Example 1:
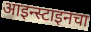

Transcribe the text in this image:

आइन्स्टाइनचा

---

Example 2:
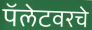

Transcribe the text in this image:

पॅलेटवरचे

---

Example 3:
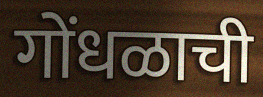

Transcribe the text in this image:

गोंधळाची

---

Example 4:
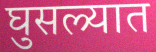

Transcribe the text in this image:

घुसल्यात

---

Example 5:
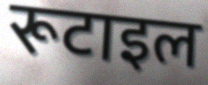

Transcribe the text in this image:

रूटाइल